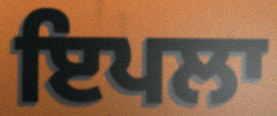
ਇਪਲਾ